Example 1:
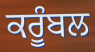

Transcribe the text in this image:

ਕਰੂੰਬਲ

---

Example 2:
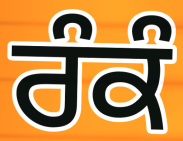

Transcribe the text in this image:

ਰੰਕੰ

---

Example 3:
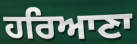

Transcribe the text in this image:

ਹਰਿਆਣਾ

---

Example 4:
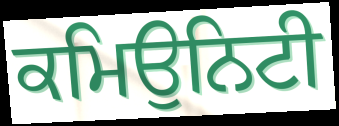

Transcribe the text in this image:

ਕਮਿਉਨਿਟੀ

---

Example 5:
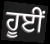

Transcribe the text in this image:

ਹੂਈਂ